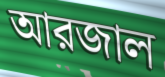
আরজাল